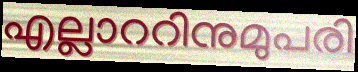
എല്ലാററിനുമുപരി